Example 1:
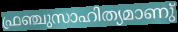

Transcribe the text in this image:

ഫ്രഞ്ചുസാഹിത്യമാണു്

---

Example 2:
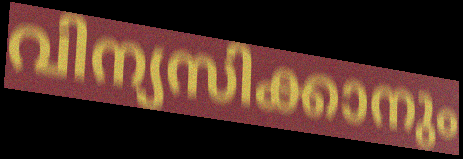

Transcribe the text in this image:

വിന്യസിക്കാനും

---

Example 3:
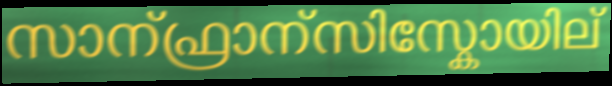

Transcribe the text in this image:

സാന്ഫ്രാന്സിസ്കോയില്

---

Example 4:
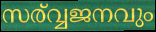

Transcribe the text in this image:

സര്വ്വജനവും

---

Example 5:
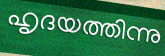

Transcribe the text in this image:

ഹൃദയത്തിന്നു